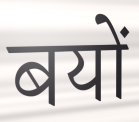
बयों